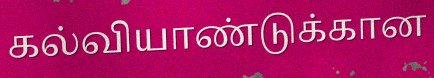
கல்வியாண்டுக்கான